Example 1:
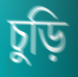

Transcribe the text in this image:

চুড়ি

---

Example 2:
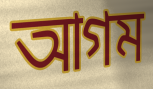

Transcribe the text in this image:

আগম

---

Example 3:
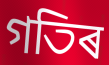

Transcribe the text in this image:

গতিৰ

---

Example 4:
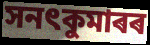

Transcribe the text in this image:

সনৎকুমাৰৰ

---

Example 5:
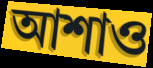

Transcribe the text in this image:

আশাও